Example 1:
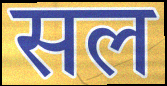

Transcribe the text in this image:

सल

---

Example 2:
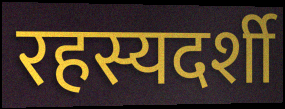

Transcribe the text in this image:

रहस्यदर्शी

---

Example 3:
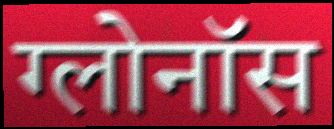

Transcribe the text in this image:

ग्लोनॉस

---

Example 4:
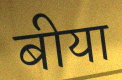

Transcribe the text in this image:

बीया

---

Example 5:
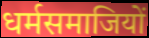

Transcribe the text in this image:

धर्मसमाजियों